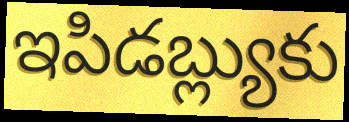
ఇపిడబ్ల్యుకు